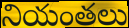
నియంతలు